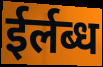
ईर्लब्ध